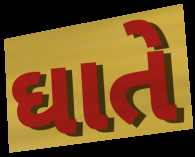
ઘાતે